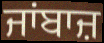
ਜਾਂਬਾਜ਼